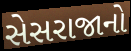
સેસરાજાનો